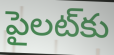
పైలట్‌కు